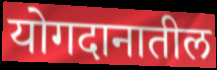
योगदानातील